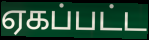
ஏகப்பட்ட